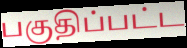
பகுதிப்பட்ட